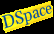
DSpace